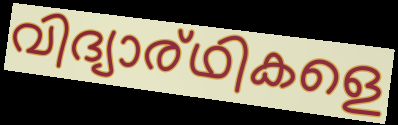
വിദ്യാര്ഥികളെ